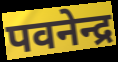
पवनेन्द्र